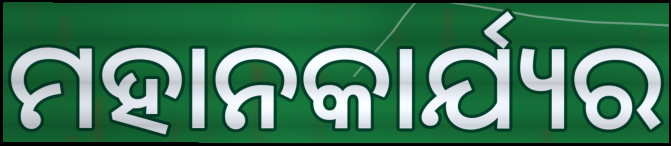
ମହାନକାର୍ଯ୍ୟର